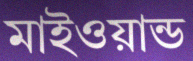
মাইওয়ান্ড